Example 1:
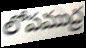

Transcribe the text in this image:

లోపముద్ర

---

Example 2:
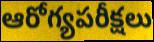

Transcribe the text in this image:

ఆరోగ్యపరీక్షలు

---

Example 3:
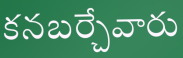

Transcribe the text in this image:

కనబర్చేవారు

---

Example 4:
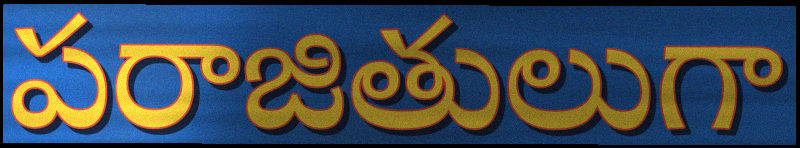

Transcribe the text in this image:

పరాజితులుగా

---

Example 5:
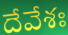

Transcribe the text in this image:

దేవేశః